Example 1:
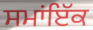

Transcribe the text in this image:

ਸਮਾਂਇੱਕ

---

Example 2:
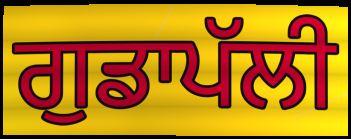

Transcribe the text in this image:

ਗੁਡਾਪੱਲੀ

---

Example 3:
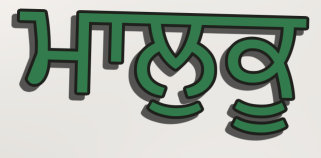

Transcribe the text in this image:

ਮਾਲੁਕੂ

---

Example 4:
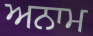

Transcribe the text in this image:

ਅਨਾਮ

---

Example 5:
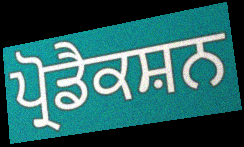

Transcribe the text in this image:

ਪ੍ਰੋਡੈਕਸ਼ਨ